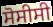
ਸੋਸੀਸੀ